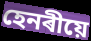
হেনৰীয়ে